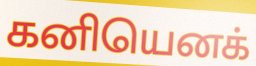
கனியெனக்